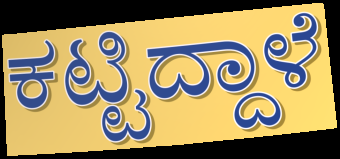
ಕಟ್ಟಿದ್ದಾಳೆ